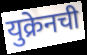
युक्रेनची